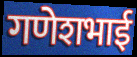
गणेशभाई